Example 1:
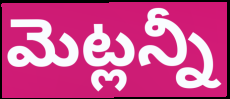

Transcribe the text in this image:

మెట్లన్నీ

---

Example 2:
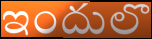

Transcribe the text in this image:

ఇందులొ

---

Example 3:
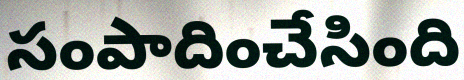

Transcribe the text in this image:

సంపాదించేసింది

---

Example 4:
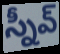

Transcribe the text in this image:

స్నీవ్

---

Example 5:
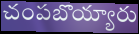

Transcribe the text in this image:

చంపబొయ్యారు